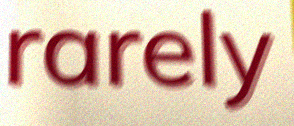
rarely